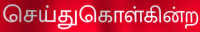
செய்துகொள்கின்ற